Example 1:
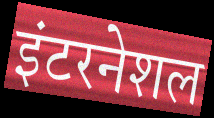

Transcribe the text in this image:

इंटरनेशल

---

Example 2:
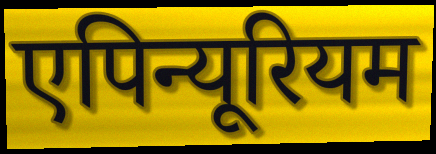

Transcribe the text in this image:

एपिन्यूरियम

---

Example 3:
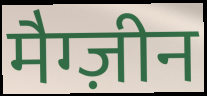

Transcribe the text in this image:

मैग्ज़ीन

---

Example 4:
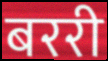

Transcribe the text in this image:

बररी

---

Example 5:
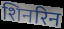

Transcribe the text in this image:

शिनरिन